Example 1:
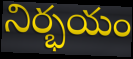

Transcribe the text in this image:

నిర్భయం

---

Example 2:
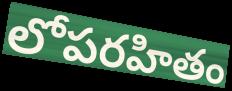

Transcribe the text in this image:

లోపరహితం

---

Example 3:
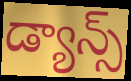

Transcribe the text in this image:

డ్యాన్స్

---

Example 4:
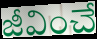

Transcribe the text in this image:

జీవించే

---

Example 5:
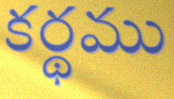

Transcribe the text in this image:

కర్థము